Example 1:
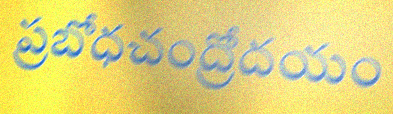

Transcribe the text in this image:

ప్రబోధచంద్రోదయం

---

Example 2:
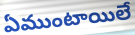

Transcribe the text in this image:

ఏముంటాయిలే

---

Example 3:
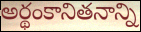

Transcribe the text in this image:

అర్థంకానితనాన్ని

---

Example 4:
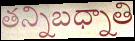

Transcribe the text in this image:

తన్నిబధ్నాతి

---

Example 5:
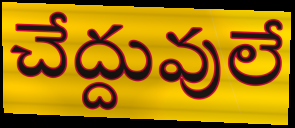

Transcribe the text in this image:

చేద్దువులే